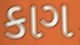
કાગ